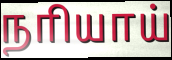
நரியாய்